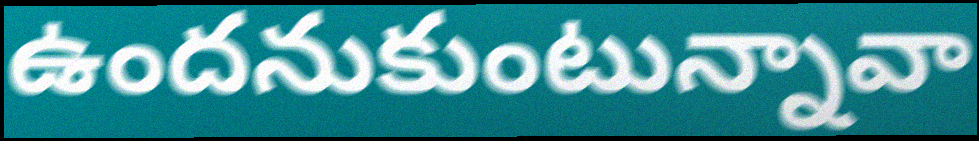
ఉందనుకుంటున్నావా